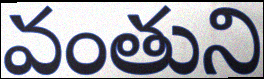
వంతుని